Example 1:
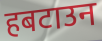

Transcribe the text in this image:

हबटाउन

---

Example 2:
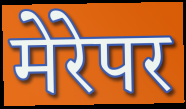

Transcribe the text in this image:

मेरेपर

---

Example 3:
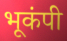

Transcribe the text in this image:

भूकंपी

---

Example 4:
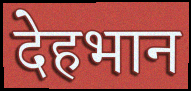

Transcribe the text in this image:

देहभान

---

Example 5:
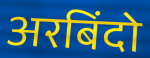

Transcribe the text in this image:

अरबिंदो